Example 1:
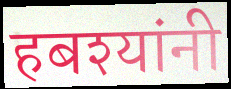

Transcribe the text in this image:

हबश्यांनी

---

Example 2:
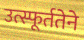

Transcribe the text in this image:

उत्स्फूर्ततेने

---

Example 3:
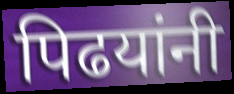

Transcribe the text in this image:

पिढयांनी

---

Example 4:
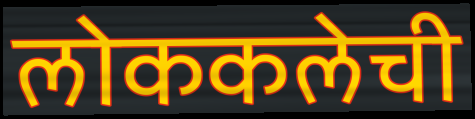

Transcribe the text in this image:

लोककलेची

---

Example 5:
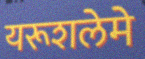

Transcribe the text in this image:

यरूशलेमे